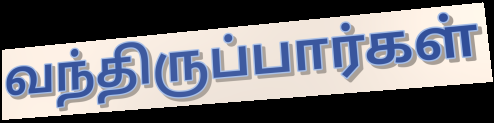
வந்திருப்பார்கள்